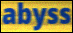
abyss